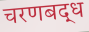
चरणबद्ध